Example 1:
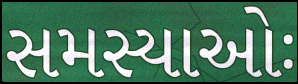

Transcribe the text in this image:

સમસ્યાઓઃ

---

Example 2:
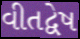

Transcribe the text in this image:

વીતદ્વેષ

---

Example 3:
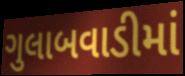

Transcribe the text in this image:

ગુલાબવાડીમાં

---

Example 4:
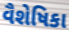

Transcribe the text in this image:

વૈશેષિકા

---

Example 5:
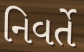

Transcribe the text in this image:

નિવર્તે